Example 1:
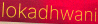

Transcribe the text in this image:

lokadhwani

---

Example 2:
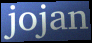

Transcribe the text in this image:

jojan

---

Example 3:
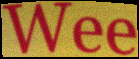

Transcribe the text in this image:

Wee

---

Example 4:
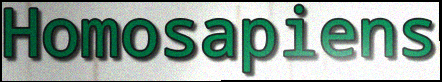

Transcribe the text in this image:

Homosapiens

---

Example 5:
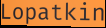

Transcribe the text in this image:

Lopatkin